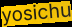
yosichu